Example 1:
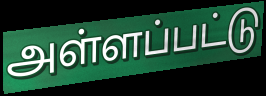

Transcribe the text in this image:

அள்ளப்பட்டு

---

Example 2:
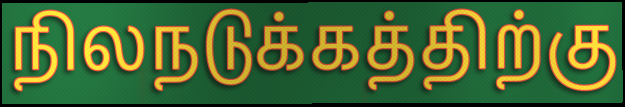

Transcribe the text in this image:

நிலநடுக்கத்திற்கு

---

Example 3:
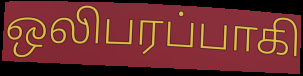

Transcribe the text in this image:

ஒலிபரப்பாகி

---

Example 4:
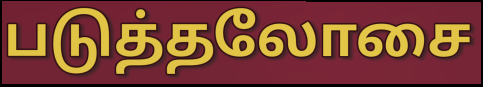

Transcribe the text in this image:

படுத்தலோசை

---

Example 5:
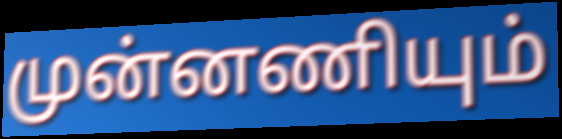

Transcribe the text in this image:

முன்னணியும்